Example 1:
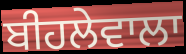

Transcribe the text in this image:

ਬੀਹਲੇਵਾਲਾ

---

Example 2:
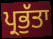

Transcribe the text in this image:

ਪ੍ਰਭੁੱਤਾ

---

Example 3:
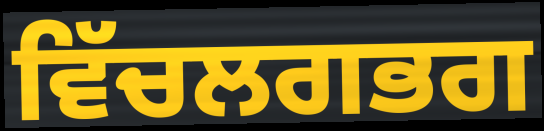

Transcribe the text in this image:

ਵਿੱਚਲਗਭਗ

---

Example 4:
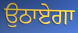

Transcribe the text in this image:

ਉਠਾਏਗਾ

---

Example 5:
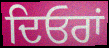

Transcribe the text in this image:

ਦਿਓਰਾਂ